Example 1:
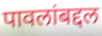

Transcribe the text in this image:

पावलांबद्दल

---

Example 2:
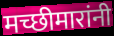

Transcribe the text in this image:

मच्छीमारांनी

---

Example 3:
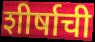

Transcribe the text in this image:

शीर्षाची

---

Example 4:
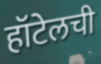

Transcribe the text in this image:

हॉटेलची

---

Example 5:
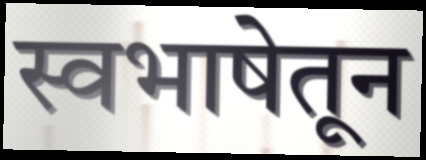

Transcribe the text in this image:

स्वभाषेतून